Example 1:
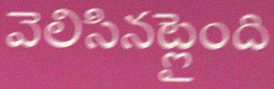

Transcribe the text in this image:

వెలిసినట్లైంది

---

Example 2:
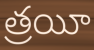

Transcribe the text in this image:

త్రయీ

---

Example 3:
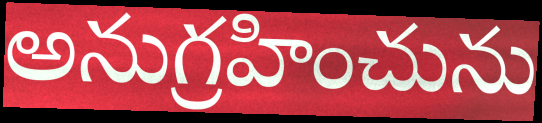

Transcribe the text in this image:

అనుగ్రహించును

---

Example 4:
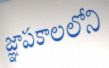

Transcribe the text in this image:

జ్ఞాపకాలలోని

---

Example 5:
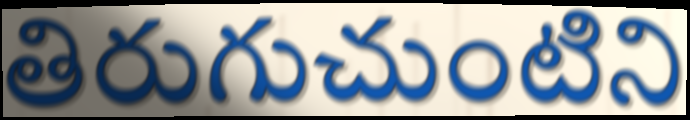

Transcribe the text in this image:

తిరుగుచుంటిని